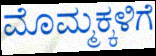
ಮೊಮ್ಮಕ್ಕಳಿಗೆ